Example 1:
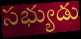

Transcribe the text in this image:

సభ్యుడు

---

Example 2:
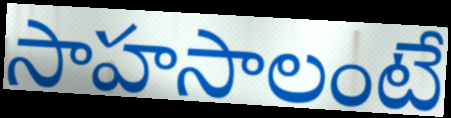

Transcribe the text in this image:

సాహసాలంటే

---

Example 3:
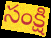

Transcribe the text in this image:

సంక్షి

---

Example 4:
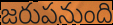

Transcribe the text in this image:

జరుపనుంది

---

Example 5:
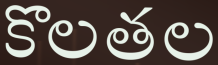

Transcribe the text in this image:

కొలతల